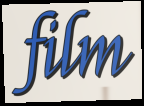
film